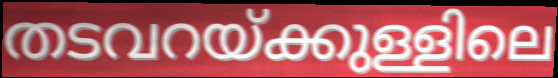
തടവറയ്ക്കുള്ളിലെ